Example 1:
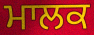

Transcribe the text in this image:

ਮਾਲਕ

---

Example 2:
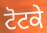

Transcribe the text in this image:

ਟੋਟਕੇ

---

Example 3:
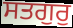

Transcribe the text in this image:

ਸਤਗੁਰੁ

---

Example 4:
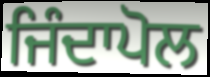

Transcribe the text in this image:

ਜਿੰਦਾਪੋਲ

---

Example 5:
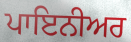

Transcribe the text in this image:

ਪਾਇਨੀਅਰ